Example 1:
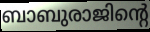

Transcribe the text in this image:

ബാബുരാജിന്റെ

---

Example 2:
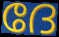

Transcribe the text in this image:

ദേ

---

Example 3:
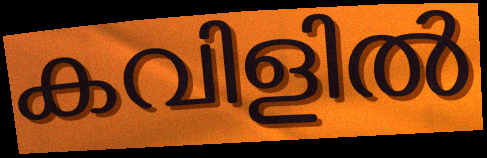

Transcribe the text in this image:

കവിളിൽ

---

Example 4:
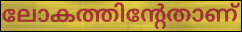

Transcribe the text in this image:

ലോകത്തിന്റേതാണ്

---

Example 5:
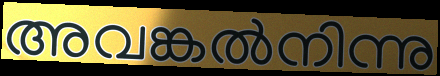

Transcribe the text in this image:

അവങ്കൽനിന്നു